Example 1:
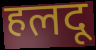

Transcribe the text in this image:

हलदू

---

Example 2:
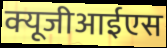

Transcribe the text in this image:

क्यूजीआईएस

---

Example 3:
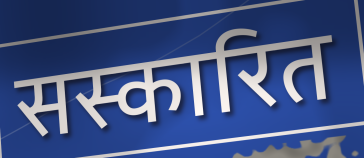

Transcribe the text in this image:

सस्कारित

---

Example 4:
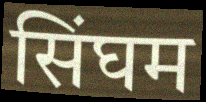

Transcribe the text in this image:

सिंघम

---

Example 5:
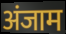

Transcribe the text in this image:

अंजाम